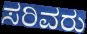
ಸರಿವರು